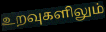
உறவுகளிலும்